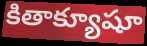
కితాక్యూషూ